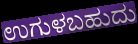
ಉಗುಳಬಹುದು